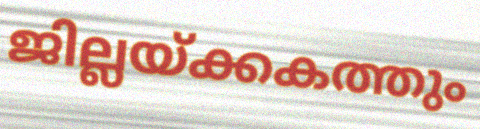
ജില്ലയ്ക്കകത്തും